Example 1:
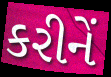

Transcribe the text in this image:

કરીનેં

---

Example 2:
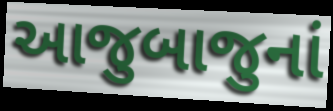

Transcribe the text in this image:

આજુબાજુનાં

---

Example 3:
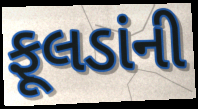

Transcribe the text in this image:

ફૂલડાંની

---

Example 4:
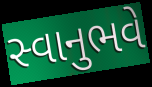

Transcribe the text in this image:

સ્વાનુભવે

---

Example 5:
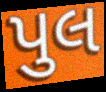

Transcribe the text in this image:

પુલ